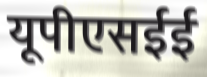
यूपीएसईई